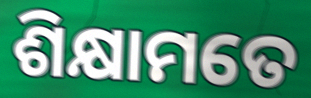
ଶିକ୍ଷାମତେ